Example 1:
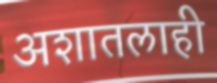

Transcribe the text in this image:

अशातलाही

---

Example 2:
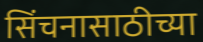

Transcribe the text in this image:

सिंचनासाठीच्या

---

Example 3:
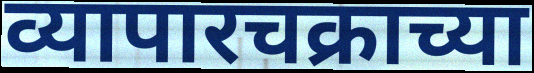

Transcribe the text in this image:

व्यापारचक्राच्या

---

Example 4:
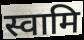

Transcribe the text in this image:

स्वामि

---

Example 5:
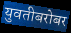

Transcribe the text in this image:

युवतीबरोबर